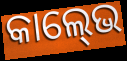
କାଲ୍‍ଭେ